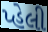
પ્હેલી